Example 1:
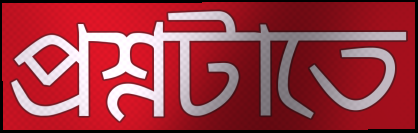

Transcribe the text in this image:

প্রশ্নটাতে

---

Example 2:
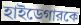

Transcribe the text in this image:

হাইডেগারকে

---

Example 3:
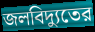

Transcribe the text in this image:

জলবিদ্যুতের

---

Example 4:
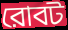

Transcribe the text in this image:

রোবট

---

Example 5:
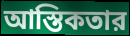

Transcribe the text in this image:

আস্তিকতার